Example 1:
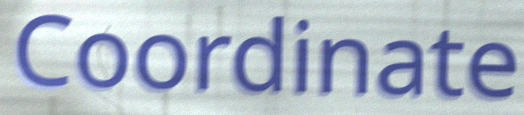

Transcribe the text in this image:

Coordinate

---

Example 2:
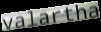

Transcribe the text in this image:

valartha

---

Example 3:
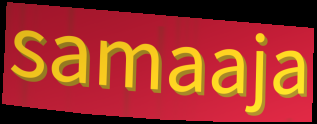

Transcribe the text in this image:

samaaja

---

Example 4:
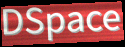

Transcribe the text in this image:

DSpace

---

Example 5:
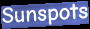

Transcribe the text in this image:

Sunspots